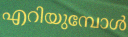
എറിയുമ്പോൾ